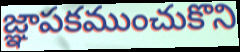
జ్ఞాపకముంచుకొని